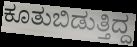
ಕೂತುಬಿಡುತ್ತಿದ್ದ